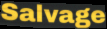
Salvage